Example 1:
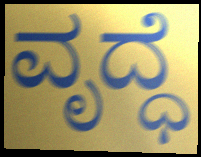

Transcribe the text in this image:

ವೃದ್ಧೆ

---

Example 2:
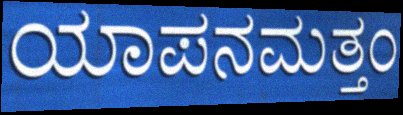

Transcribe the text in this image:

ಯಾಪನಮತ್ತಂ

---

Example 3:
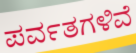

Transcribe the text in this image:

ಪರ್ವತಗಳಿವೆ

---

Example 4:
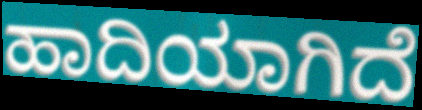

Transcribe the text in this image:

ಹಾದಿಯಾಗಿದೆ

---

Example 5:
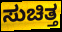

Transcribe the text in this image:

ಸುಚಿತ್ತ